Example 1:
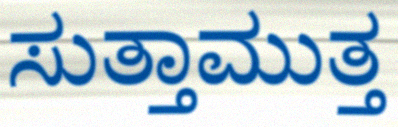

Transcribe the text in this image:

ಸುತ್ತಾಮುತ್ತ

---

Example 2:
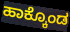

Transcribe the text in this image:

ಹಾಕ್ಕೊಂಡ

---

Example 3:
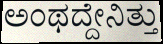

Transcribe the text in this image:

ಅಂಥದ್ದೇನಿತ್ತು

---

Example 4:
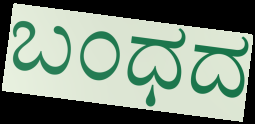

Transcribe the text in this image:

ಬಂಧದ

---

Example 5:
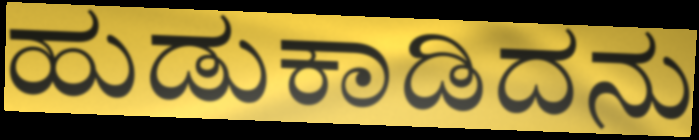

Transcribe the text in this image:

ಹುಡುಕಾಡಿದನು